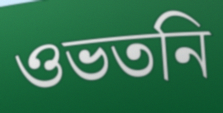
ওভতনি